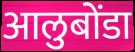
आलुबोंडा